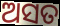
ଅସତ